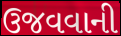
ઉજવવાની